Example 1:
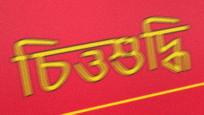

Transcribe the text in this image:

চিত্তশুদ্ধি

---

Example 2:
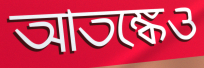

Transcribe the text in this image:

আতঙ্কেও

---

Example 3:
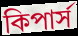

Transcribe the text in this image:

কিপার্স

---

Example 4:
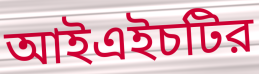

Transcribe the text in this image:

আইএইচটির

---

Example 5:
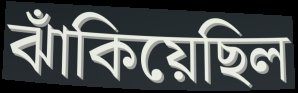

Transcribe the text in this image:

ঝাঁকিয়েছিল